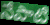
నేపాటి